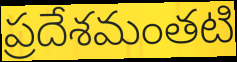
ప్రదేశమంతటి